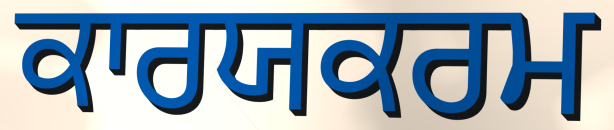
ਕਾਰਯਕਰਮ